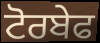
ਟੋਰਬੇਫ